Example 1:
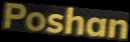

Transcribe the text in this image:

Poshan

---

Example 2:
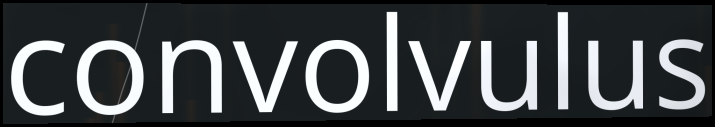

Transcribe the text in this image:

convolvulus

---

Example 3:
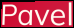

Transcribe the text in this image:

Pavel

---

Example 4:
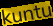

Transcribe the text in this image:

kuntu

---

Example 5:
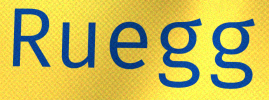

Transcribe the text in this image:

Ruegg